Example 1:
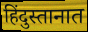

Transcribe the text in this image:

हिंदुस्तानात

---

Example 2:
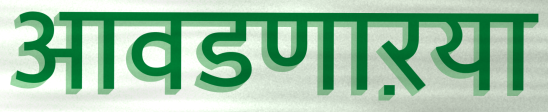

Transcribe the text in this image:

आवडणाऱया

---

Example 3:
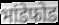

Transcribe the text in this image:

भांडेफोड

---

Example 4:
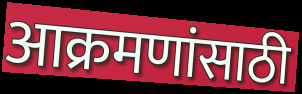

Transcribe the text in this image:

आक्रमणांसाठी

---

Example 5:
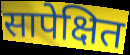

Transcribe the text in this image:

सापेक्षित